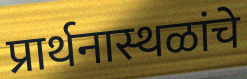
प्रार्थनास्थळांचे